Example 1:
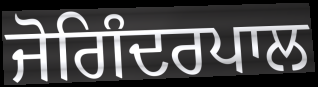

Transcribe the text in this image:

ਜੋਗਿੰਦਰਪਾਲ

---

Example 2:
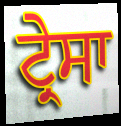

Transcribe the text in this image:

ਟ੍ਰੇਸਾ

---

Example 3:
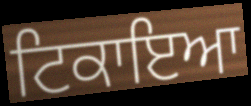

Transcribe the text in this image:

ਟਿਕਾਇਆ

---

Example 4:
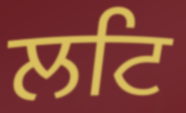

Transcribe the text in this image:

ਲਟਿ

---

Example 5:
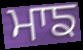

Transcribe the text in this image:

ਮਾਙ